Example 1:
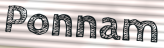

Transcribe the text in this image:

Ponnam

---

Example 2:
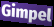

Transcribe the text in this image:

Gimpel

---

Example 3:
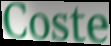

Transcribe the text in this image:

Coste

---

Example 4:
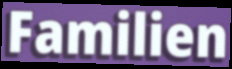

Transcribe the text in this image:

Familien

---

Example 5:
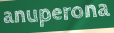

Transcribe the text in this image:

anuperona